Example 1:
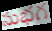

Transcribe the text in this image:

సుభగ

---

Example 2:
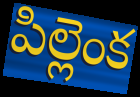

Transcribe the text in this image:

పిల్లెంక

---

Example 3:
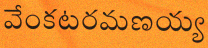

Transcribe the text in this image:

వేంకటరమణయ్య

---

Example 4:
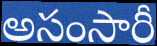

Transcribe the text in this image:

అసంసారీ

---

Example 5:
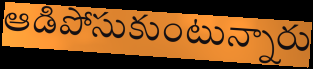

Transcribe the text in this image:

ఆడిపోసుకుంటున్నారు